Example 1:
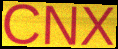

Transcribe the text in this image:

CNX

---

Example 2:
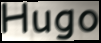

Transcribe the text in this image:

Hugo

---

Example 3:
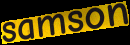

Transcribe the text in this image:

samson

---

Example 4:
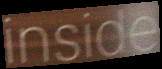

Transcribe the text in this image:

inside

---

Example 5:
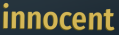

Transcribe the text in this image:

innocent